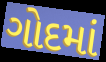
ગોદમાં